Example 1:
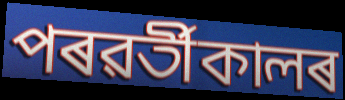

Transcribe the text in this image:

পৰৱৰ্তীকালৰ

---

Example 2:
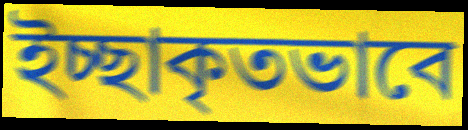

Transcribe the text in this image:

ইচ্ছাকৃতভাবে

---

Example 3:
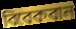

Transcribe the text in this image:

বিবেকবান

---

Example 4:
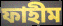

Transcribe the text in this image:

ফাহীম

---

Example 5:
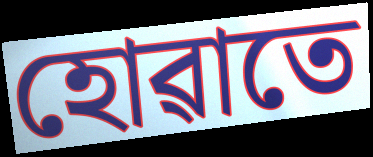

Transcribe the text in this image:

হোৱাতে